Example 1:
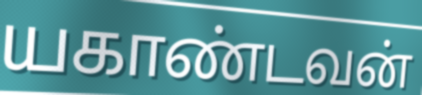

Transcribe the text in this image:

யகாண்டவன்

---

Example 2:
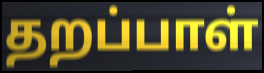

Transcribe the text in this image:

தறப்பாள்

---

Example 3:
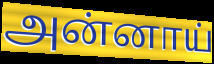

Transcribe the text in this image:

அன்னாய்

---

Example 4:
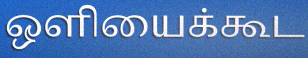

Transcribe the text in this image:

ஒளியைக்கூட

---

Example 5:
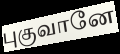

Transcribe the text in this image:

புகுவானே